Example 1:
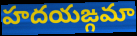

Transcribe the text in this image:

హదయఙ్గమా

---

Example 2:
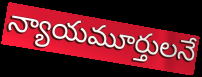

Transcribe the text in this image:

న్యాయమూర్తులనే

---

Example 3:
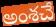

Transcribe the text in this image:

అంశచే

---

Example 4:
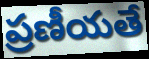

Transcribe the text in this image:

ప్రణీయతే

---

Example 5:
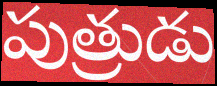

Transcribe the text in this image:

పుత్రుడు